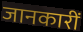
जानकारीं